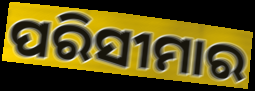
ପରିସୀମାର